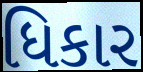
ધિકાર